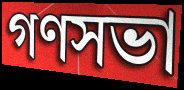
গণসভা